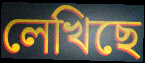
লেখিছে